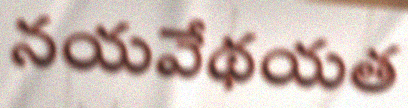
నయవేథయత